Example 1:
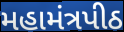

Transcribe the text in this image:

મહામંત્રપીઠ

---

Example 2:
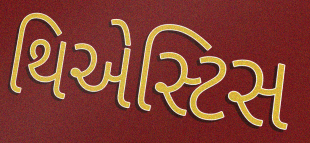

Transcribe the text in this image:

થિએસ્ટિસ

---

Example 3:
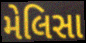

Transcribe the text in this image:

મેલિસા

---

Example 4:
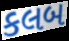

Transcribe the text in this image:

કલબ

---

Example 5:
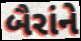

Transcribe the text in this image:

બૈરાંને